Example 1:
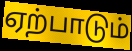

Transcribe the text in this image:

ஏற்பாடும்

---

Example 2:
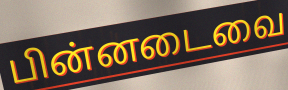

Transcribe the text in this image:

பின்னடைவை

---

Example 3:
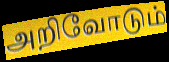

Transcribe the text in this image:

அறிவோடும்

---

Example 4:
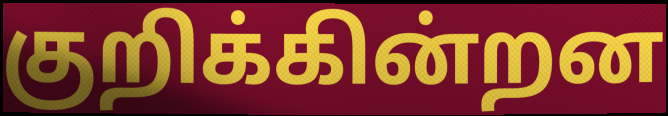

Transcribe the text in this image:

குறிக்கின்றன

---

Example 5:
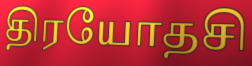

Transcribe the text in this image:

திரயோதசி